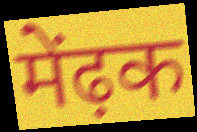
मेंढ़क